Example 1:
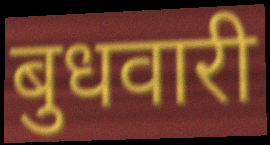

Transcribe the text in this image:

बुधवारी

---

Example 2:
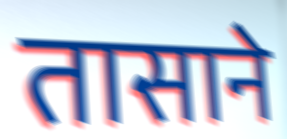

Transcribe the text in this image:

तासाने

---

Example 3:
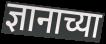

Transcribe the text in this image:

ज्ञानाच्या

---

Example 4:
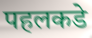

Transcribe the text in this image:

पहलकडे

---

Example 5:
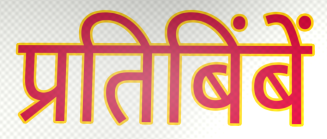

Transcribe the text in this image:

प्रतिबिंबें